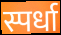
स्पर्धा